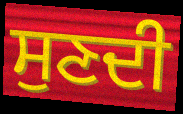
ਸੁਣਦੀ